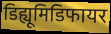
डिह्यूमिडिफायर